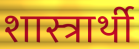
शास्त्रार्थी